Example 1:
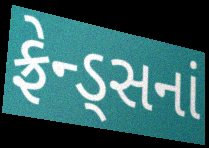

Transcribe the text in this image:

ફ્રેન્ડ્સનાં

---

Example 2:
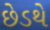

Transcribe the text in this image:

છેડથે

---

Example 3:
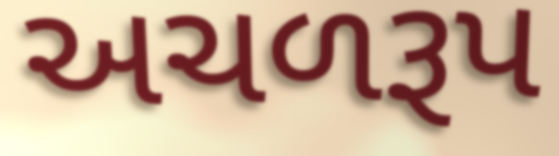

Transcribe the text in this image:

અચળરૂપ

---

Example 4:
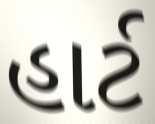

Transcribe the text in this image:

હાર્ટ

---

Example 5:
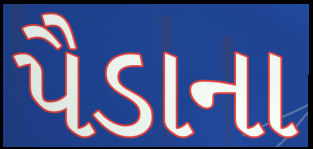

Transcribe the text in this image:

પૈડાના